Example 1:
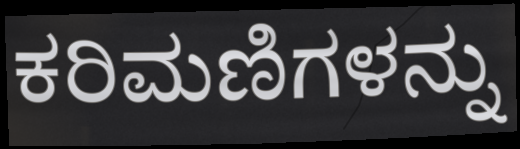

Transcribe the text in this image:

ಕರಿಮಣಿಗಳನ್ನು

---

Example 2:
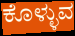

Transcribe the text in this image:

ಕೊಳ್ಳುವ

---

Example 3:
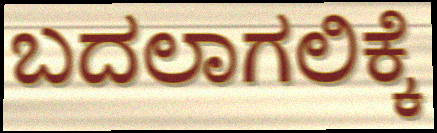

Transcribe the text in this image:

ಬದಲಾಗಲಿಕ್ಕೆ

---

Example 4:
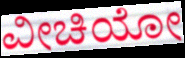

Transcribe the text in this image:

ವೀಚಿಯೋ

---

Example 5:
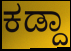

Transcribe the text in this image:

ಕಡ್ದಾ